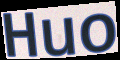
Huo